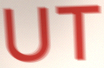
UT